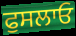
ਫੁਸਲਾਓ